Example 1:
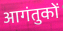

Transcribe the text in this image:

आगंतुकों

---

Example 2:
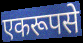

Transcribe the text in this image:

एकरूपसे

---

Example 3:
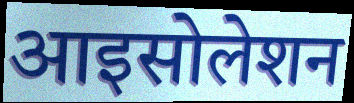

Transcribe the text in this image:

आइसोलेशन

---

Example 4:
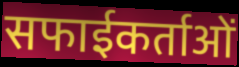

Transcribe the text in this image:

सफाईकर्ताओं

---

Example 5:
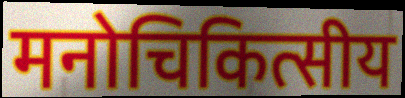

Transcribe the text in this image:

मनोचिकित्सीय